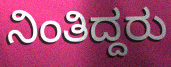
ನಿಂತಿದ್ದರು